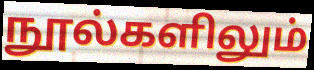
நூல்களிலும்